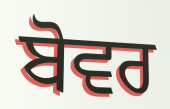
ਬੋਵਰ